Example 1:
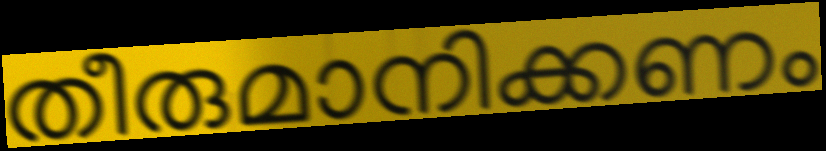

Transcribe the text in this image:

തീരുമാനിക്കണം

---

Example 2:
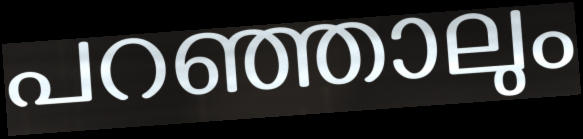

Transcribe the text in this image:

പറഞ്ഞാലും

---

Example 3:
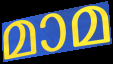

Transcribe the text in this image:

മാമ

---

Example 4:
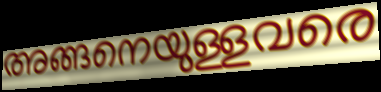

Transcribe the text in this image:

അങ്ങനെയുള്ളവരെ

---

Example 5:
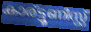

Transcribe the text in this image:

കാര്ട്ടൂണിസ്റ്റ്